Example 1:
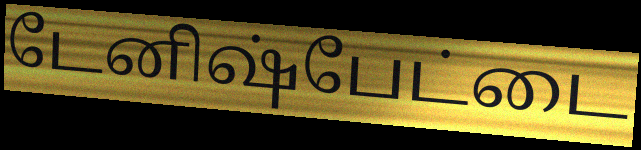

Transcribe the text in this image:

டேனிஷ்பேட்டை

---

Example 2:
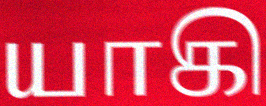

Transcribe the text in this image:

யாகி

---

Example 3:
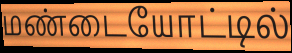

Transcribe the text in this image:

மண்டையோட்டில்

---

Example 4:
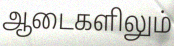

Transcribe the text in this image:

ஆடைகளிலும்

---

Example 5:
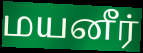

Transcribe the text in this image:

மயனீர்